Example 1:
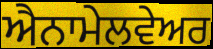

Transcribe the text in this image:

ਐਨਾਮੇਲਵੇਅਰ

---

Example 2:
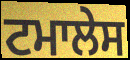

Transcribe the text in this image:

ਟਮਾਲੇਸ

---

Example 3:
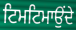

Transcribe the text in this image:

ਟਿਮਟਿਮਾਉਂਦੇ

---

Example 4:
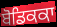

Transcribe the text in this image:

ਬੋਡਿਕਕਾ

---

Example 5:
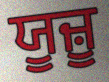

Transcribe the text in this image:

ਯੂਜ਼ੂ